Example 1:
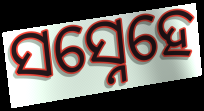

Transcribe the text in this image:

ସସ୍ନେହେ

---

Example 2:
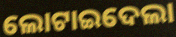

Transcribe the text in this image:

ଲୋଟାଇଦେଲା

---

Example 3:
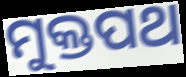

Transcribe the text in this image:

ମୁକ୍ତପଥ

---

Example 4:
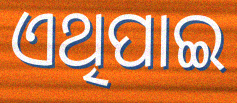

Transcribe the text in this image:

ଏଥିପାଇ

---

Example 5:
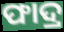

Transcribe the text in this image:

ଫାଦ୍ର